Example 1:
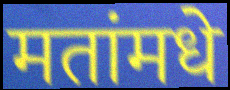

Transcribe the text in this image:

मतांमधे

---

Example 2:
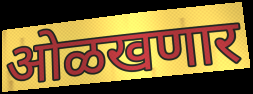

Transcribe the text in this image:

ओळखणार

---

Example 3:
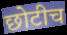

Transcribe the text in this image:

छोटीच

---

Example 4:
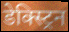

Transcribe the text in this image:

डेक्स्ट्रिन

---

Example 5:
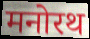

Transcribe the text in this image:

मनोरथ